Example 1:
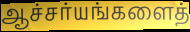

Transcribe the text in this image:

ஆச்சர்யங்களைத்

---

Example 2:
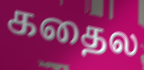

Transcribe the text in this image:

கதைல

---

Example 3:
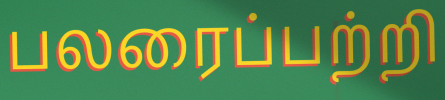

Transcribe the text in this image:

பலரைப்பற்றி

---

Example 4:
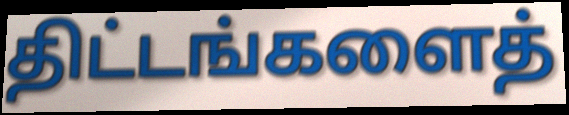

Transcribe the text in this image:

திட்டங்களைத்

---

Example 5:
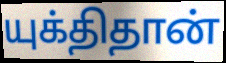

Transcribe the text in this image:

யுக்திதான்